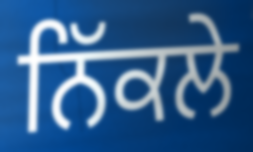
ਨਿੱਕਲੇ